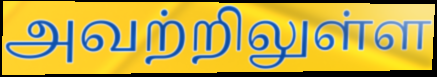
அவற்றிலுள்ள